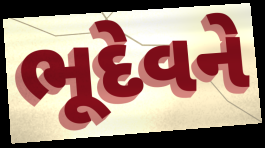
ભૂદેવને